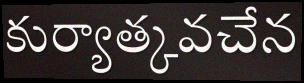
కుర్యాత్కవచేన